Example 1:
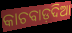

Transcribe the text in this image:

କାଚବାଡ଼ଦିଆ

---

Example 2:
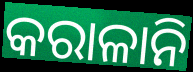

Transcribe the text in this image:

କରାଳାନି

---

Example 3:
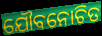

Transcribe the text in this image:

ଯୌବନୋଚିତ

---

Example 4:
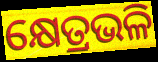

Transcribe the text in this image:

କ୍ଷେତ୍ରଭଳି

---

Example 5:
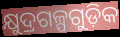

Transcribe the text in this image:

କ୍ଷୁଦ୍ରଗଳ୍ପଗୁଡ଼ିକ